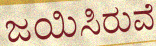
ಜಯಿಸಿರುವೆ